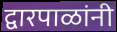
द्वारपाळांनी